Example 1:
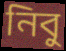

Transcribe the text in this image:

নিবু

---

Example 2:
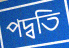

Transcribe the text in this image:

পদ্বতি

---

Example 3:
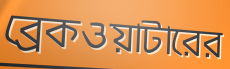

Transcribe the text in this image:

ব্রেকওয়াটারের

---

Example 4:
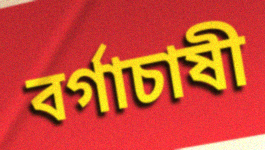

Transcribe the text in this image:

বর্গাচাষী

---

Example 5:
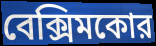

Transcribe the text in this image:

বেক্সিমকোর